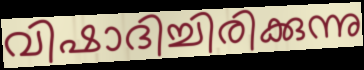
വിഷാദിച്ചിരിക്കുന്നു